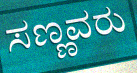
ಸಣ್ಣವರು